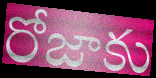
రోజాకు